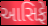
આસિફે